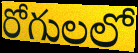
రోగులలో